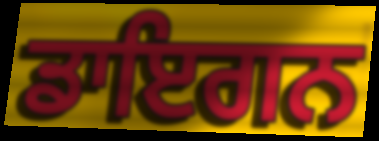
ਡਾਇਗਨ